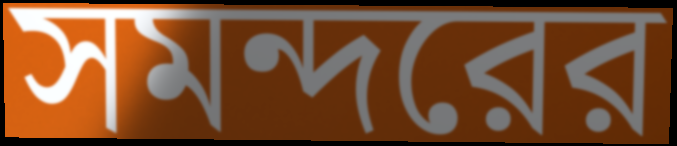
সমন্দরের